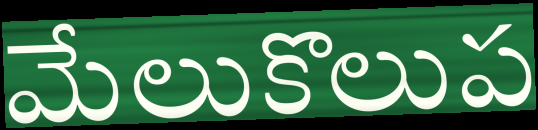
మేలుకొలుప